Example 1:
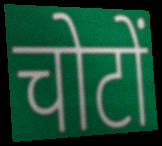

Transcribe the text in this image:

चोटों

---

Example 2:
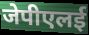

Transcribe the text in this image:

जेपीएलई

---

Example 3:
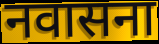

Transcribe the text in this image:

नवासना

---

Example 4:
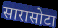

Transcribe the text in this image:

सारासोटा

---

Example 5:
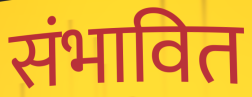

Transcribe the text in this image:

संभावित